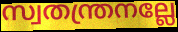
സ്വതന്ത്രനല്ലേ